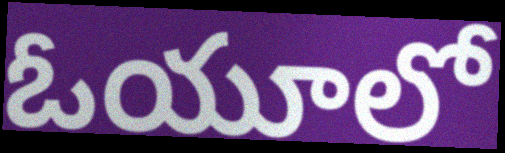
ఓయూలో